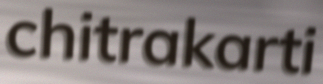
chitrakarti